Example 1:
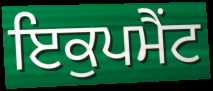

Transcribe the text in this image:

ਇਕੁਪਮੈਂਟ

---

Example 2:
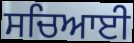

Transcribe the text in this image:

ਸਚਿਆਈ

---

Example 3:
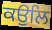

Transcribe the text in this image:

ਕਉਲਿ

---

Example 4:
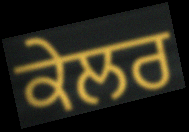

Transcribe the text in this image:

ਕੇਲਰ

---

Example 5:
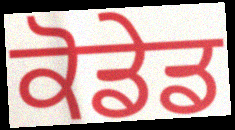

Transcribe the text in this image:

ਕੋਡੇਡ